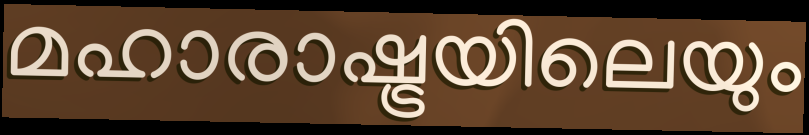
മഹാരാഷ്ട്രയിലെയും